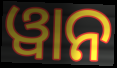
ୱାନ